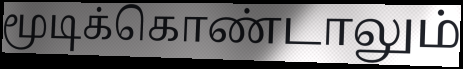
மூடிக்கொண்டாலும்